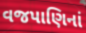
વજપાણિનાં